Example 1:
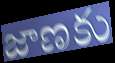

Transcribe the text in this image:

జాణకు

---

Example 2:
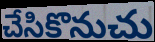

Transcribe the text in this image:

చేసికొనుచు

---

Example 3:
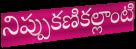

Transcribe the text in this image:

నిప్పుకణికల్లాంటి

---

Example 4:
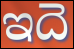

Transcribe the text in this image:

ఇదె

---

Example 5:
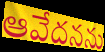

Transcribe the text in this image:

ఆవేదనను